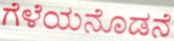
ಗೆಳೆಯನೊಡನೆ